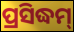
ପ୍ରସିଦ୍ଧମ୍